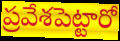
ప్రవేశపెట్టారో